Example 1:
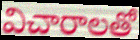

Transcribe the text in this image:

విచారాలతో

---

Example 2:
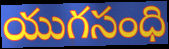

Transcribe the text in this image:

యుగసంధి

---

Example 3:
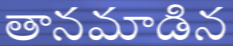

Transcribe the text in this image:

తానమాడిన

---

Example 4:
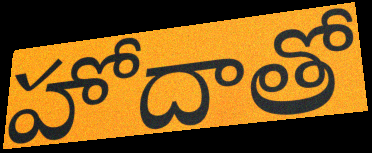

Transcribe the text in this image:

హోదాతో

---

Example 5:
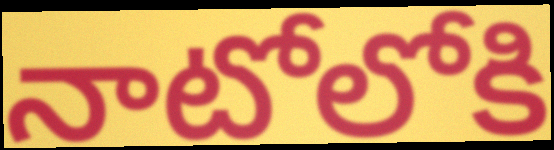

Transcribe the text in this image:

నాటోలోకి